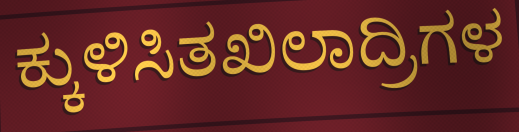
ಕ್ಕುಳಿಸಿತಖಿಲಾದ್ರಿಗಳ